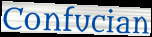
Confucian